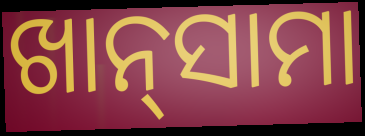
ଖାନ୍‍ସାମା